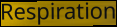
Respiration